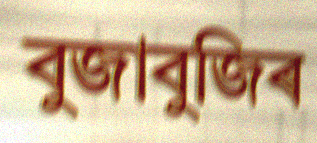
বুজাবুজিৰ